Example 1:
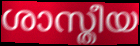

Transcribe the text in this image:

ശാസ്തീയ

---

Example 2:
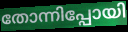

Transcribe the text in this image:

തോന്നിപ്പോയി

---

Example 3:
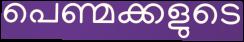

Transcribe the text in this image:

പെണ്മക്കളുടെ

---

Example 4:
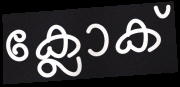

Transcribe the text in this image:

ക്ലോക്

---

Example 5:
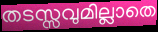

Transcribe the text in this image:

തടസ്സവുമില്ലാതെ